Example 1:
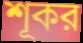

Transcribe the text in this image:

শূকর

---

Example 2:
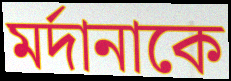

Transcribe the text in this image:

মর্দানাকে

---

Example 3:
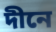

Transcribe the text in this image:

দীনে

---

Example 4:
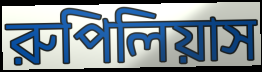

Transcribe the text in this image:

রুপিলিয়াস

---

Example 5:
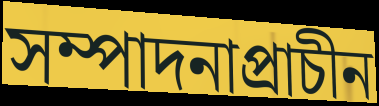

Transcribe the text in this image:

সম্পাদনাপ্রাচীন